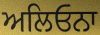
ਅਲਿਓਨਾ